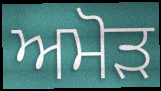
ਅਮੋੜ